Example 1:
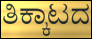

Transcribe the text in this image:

ತಿಕ್ಕಾಟದ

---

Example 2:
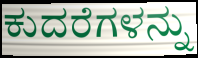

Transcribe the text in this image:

ಕುದರೆಗಳನ್ನು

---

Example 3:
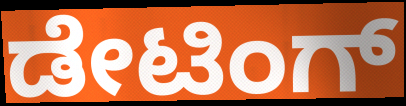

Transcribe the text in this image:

ಡೇಟಿಂಗ್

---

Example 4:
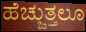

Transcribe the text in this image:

ಹೆಚ್ಚುತ್ತಲೂ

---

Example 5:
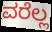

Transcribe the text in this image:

ವರೆಲ್ಲ